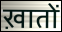
ख़ातों